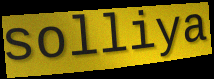
solliya